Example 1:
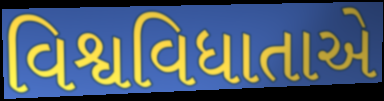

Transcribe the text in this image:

વિશ્વવિધાતાએ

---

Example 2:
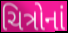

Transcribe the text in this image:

ચિત્રોનાં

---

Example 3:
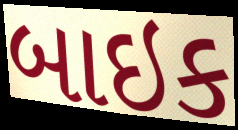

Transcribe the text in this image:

બાઇક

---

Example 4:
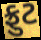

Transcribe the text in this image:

ફ્રુટ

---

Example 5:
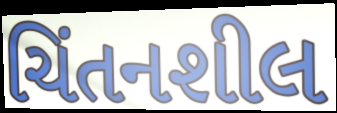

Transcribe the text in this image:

ચિંતનશીલ